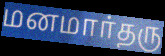
மனமார்தரு